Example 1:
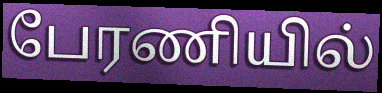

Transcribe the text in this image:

பேரணியில்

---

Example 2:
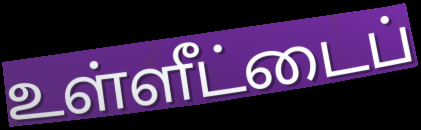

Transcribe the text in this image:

உள்ளீட்டைப்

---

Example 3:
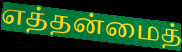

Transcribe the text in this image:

எத்தன்மைத்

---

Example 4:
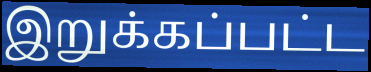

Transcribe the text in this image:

இறுக்கப்பட்ட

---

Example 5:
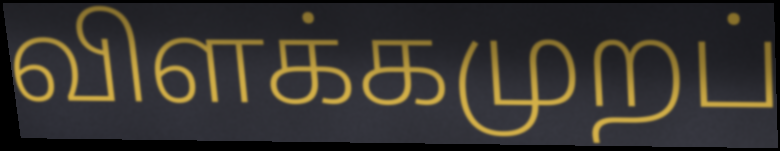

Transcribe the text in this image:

விளக்கமுறப்